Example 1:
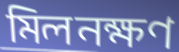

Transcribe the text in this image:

মিলনক্ষণ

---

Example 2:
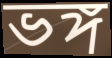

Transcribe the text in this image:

ভঙ্গ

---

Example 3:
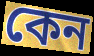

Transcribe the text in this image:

কেন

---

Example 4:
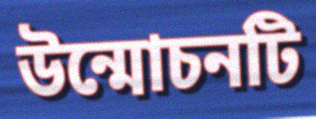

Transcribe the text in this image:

উন্মোচনটি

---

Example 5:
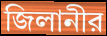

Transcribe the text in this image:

জিলানীর